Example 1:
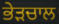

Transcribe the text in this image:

ਭੇੜਚਾਲ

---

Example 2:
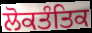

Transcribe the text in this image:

ਲੋਕਤੰਤਿਕ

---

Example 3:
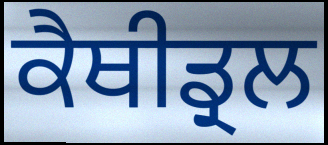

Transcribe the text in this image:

ਕੈਥੀਡ੍ਰਲ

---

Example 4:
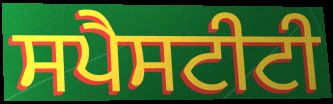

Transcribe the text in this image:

ਸਪੈਸਟੀਟੀ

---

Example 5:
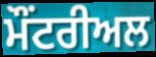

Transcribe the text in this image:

ਮੌਂਟਰੀਅਲ